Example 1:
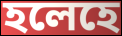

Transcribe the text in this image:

হলেহে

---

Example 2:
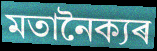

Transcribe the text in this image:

মতানৈক্যৰ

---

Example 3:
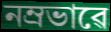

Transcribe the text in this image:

নম্ৰভাৱে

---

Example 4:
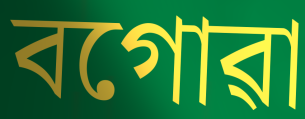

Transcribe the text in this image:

বগোৱা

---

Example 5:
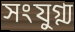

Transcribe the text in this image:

সংযুগ্ম